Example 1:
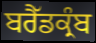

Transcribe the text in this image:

ਬਰੈੱਡਕ੍ਰੰਬ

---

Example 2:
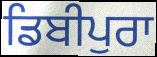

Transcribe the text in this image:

ਡਿਬੀਪੁਰਾ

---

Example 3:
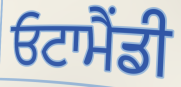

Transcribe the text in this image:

ਓਟਾਮੈਂਡੀ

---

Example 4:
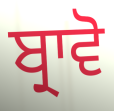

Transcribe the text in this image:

ਬ੍ਰਾਵੋ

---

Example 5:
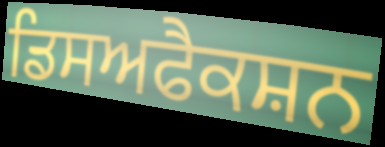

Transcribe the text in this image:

ਡਿਸਅਫੈਕਸ਼ਨ